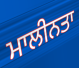
ਮਾਲੀਨਤਾ